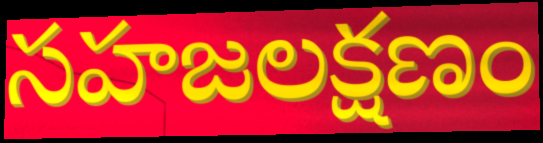
సహజలక్షణం